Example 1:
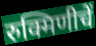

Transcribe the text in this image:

रुक्मिणीचें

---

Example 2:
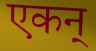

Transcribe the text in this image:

एकन्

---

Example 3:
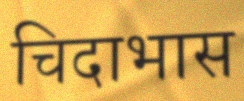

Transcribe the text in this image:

चिदाभास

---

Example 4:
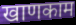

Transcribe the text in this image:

खाणकाम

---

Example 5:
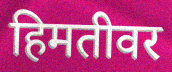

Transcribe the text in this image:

हिमतीवर